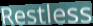
Restless